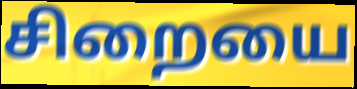
சிறையை